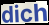
dich